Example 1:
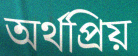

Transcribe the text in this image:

অর্থপ্রিয়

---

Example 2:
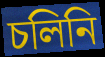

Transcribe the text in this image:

চলিনি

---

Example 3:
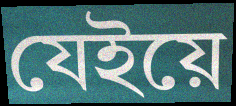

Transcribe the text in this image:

যেইয়ে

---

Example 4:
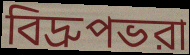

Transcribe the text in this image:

বিদ্রুপভরা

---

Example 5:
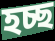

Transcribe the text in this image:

হচ্ছ